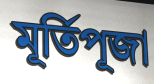
মূর্তিপূজা